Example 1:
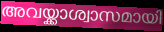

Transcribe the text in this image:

അവയ്ക്കാശ്വാസമായി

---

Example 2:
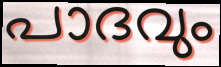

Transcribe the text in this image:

പാദവും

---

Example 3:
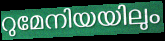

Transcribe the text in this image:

റുമേനിയയിലും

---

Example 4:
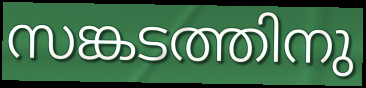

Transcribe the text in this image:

സങ്കടത്തിനു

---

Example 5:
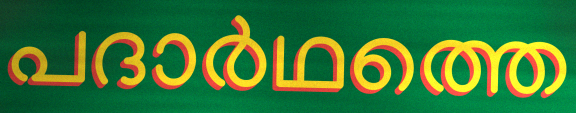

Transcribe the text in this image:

പദാർഥത്തെ